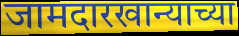
जामदारखान्याच्या